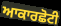
ਆਕਾਰਛੋਟੀ